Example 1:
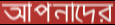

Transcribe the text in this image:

আপনাদের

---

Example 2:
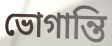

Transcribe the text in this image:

ভোগান্তি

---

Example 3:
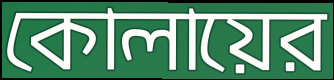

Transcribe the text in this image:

কোলায়ের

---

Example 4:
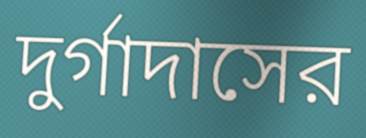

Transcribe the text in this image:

দুর্গাদাসের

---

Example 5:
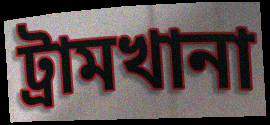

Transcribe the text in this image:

ট্রামখানা